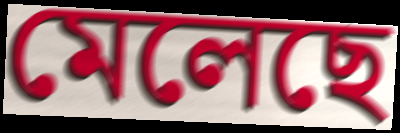
মেলেছে